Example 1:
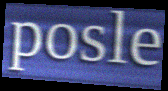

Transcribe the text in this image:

posle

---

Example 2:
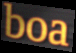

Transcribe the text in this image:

boa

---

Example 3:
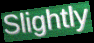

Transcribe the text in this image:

Slightly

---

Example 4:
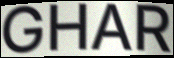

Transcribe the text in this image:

GHAR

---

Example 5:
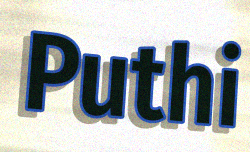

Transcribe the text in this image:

Puthi